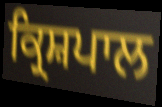
ਕ੍ਰਿਸ਼ਪਾਲ